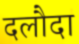
दलौदा